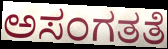
ಅಸಂಗತತೆ